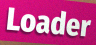
Loader